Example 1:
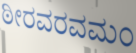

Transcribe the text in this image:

ಠೀರವರವಮಂ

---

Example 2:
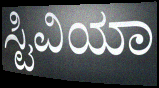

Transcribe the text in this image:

ಸ್ಟಿವಿಯಾ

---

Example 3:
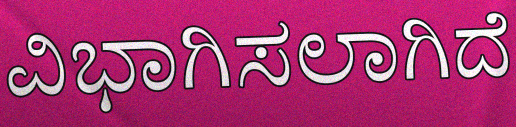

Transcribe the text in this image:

ವಿಭಾಗಿಸಲಾಗಿದೆ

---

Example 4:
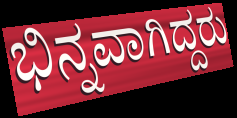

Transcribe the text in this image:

ಭಿನ್ನವಾಗಿದ್ದರು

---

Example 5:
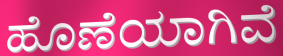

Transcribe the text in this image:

ಹೊಣೆಯಾಗಿವೆ